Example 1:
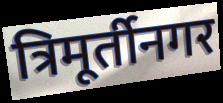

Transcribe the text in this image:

त्रिमूर्तीनगर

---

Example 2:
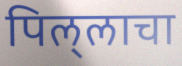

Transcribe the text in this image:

पिल्लाचा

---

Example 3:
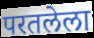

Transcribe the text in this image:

परतलेला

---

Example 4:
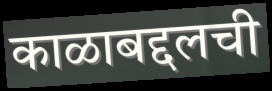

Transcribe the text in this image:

काळाबद्दलची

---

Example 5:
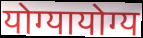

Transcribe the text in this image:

योग्यायोग्य